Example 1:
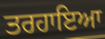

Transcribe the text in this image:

ਤਰਹਾਇਆ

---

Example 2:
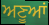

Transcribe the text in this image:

ਅਣੂਆਂ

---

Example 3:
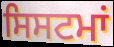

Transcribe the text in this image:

ਸਿਸਟਮਾਂ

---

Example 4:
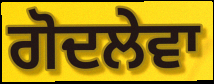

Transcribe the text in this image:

ਗੋਦਲੇਵਾ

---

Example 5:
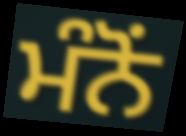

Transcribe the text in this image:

ਮੰਨੋਂ